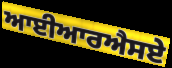
ਆਈਆਰਐਸਏ